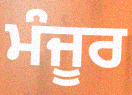
ਮੰਜੂਰ